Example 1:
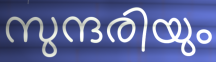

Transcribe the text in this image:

സുന്ദരിയും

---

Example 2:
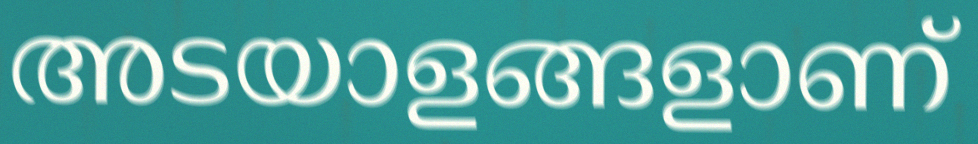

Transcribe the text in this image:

അടയാളങ്ങളാണ്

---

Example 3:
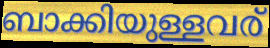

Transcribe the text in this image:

ബാക്കിയുള്ളവര്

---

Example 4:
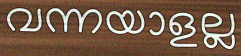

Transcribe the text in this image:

വന്നയാളല്ല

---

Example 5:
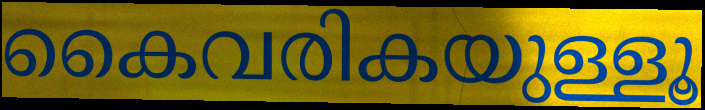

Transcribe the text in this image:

കൈവരികയുള്ളൂ